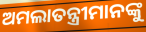
ଅମଲାତନ୍ତ୍ରୀମାନଙ୍କୁ